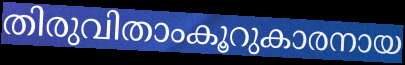
തിരുവിതാംകൂറുകാരനായ